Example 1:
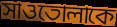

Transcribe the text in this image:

সাওতোলাকে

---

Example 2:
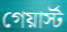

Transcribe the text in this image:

গেয়ার্স্ট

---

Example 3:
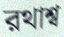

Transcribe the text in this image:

রথাশ্ব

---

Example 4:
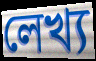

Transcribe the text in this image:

লেখ্য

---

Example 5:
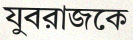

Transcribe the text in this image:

যুবরাজকে